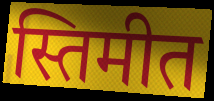
स्तिमीत